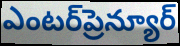
ఎంటర్‌ప్రెన్యూర్